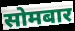
सोमबार